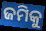
ଜମିକୁ